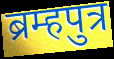
ब्रम्हपुत्र